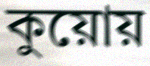
কুয়োয়